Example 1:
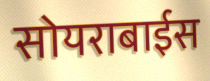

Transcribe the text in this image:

सोयराबाईस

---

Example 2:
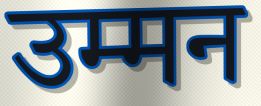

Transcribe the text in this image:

उम्मन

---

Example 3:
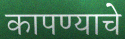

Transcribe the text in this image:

कापण्याचे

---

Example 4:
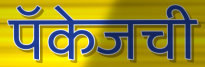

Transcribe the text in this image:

पॅकेजची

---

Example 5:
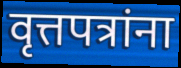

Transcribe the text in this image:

वृत्तपत्रांना